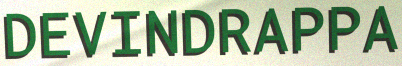
DEVINDRAPPA